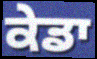
ਕੇਡਾ